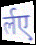
र्लए